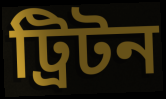
ট্রিটন